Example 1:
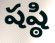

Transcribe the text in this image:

షష్ఠి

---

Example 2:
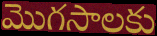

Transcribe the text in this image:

మొగసాలకు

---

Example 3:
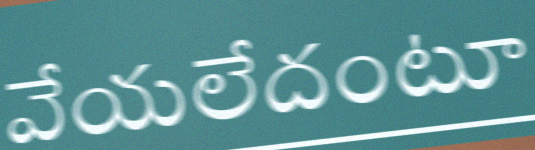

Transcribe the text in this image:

వేయలేదంటూ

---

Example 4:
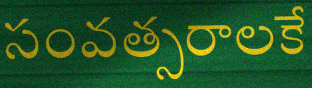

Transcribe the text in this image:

సంవత్సరాలకే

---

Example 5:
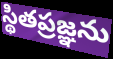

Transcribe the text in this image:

స్థితప్రజ్ఞను